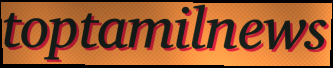
toptamilnews